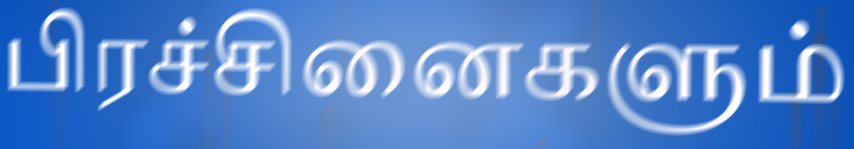
பிரச்சினைகளும்